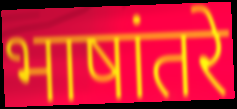
भाषांतरे